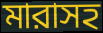
মারাসহ